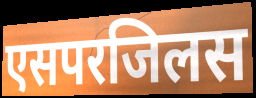
एसपरजिलस